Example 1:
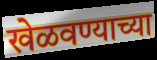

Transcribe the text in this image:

खेळवण्याच्या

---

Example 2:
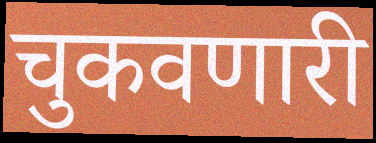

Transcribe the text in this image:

चुकवणारी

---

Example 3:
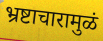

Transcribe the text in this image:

भ्रष्टाचारामुळं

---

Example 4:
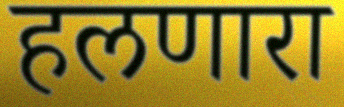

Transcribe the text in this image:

हलणारा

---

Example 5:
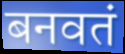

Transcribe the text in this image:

बनवतं